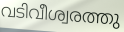
വടിവീശ്വരത്തു